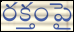
రక్తంపై